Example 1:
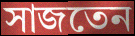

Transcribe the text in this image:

সাজতেন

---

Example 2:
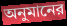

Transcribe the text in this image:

অনুমানের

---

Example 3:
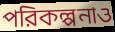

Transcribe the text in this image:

পরিকল্পনাও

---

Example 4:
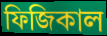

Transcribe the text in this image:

ফিজিকাল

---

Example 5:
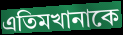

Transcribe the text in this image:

এতিমখানাকে